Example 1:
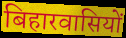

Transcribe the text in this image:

बिहारवासियों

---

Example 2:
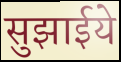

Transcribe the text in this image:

सुझाईये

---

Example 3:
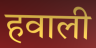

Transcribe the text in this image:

हवाली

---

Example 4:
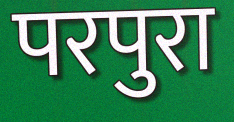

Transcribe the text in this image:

परपुरा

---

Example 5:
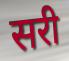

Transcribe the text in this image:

सरी